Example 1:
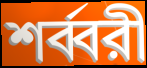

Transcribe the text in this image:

শর্ব্বরী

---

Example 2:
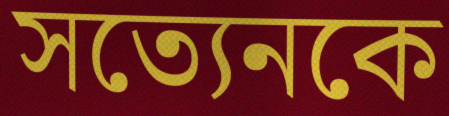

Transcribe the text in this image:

সত্যেনকে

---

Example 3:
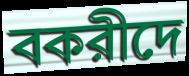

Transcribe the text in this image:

বকরীদে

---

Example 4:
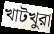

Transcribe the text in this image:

খাটখুরা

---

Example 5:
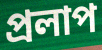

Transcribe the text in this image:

প্রলাপ